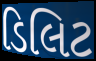
ડિલિટ